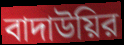
বাদাউয়ির